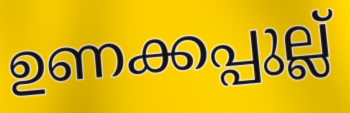
ഉണക്കപ്പുല്ല്